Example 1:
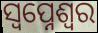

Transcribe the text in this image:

ସ୍ଵପ୍ନେଶ୍ଵର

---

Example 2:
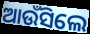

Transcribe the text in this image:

ଆଉଁସିଲେ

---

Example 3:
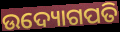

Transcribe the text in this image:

ଉଦ୍ୟୋଗପତି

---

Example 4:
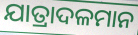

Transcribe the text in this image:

ଯାତ୍ରାଦଳମାନ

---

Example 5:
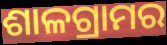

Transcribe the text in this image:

ଶାଳଗ୍ରାମର